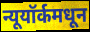
न्यूयॉर्कमधून